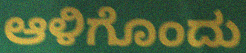
ಆಳಿಗೊಂದು